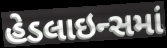
હેડલાઇન્સમાં